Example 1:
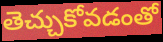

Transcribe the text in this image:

తెచ్చుకోవడంతో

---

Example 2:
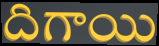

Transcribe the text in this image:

దిగాయి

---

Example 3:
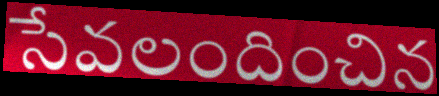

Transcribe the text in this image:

సేవలందించిన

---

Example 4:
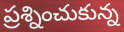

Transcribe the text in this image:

ప్రశ్నించుకున్న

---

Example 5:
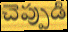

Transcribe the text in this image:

చెప్పుడి